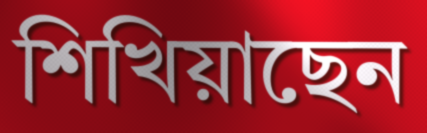
শিখিয়াছেন